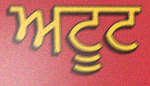
ਅਟੂਟ